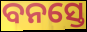
ବନସ୍ତେ